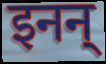
इनन्